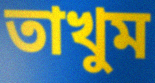
তাখুম